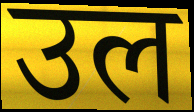
उल